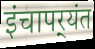
इंचापर्यंत